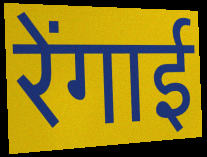
रेंगाई